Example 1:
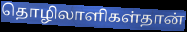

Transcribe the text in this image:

தொழிலாளிகள்தான்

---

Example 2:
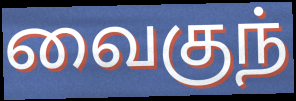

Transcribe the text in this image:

வைகுந்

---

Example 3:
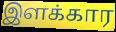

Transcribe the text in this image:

இளக்கார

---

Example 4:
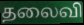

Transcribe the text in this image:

தலைவி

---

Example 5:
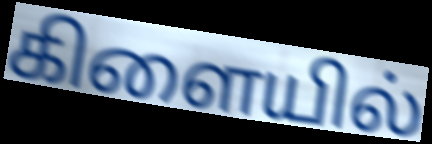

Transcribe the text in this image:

கிளையில்